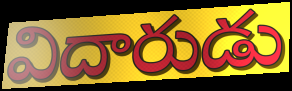
విదారుడు